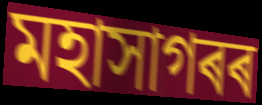
মহাসাগৰৰ